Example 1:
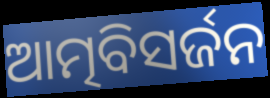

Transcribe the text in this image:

ଆତ୍ମବିସର୍ଜନ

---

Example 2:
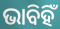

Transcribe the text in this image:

ଭାବିହିଁ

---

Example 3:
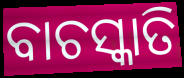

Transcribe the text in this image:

ବାଚସ୍କାତି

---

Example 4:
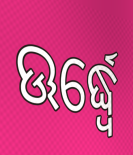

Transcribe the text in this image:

ଊର୍ଦ୍ଧ୍ୱେ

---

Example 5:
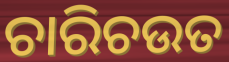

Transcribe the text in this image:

ଚାରିଚଉତ